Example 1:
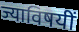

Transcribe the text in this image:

ज्याविषयीं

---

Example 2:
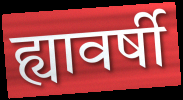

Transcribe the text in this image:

ह्यावर्षी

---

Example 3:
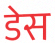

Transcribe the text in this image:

डेस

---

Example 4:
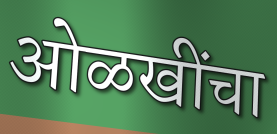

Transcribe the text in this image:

ओळखींचा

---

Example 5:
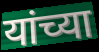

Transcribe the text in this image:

यांच्‍या